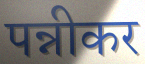
पन्नीकर